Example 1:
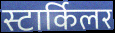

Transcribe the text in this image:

स्टार्किलर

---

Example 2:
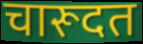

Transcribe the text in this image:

चारूदत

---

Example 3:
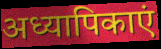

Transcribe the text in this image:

अध्यापिकाएं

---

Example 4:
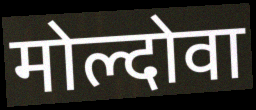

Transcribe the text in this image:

मोल्दोवा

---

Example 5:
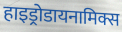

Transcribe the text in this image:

हाइड्रोडायनामिक्स